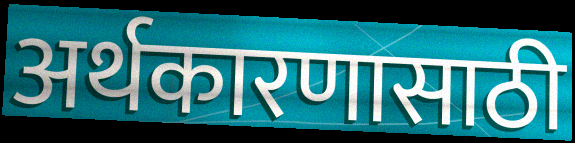
अर्थकारणासाठी